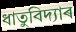
ধাতুবিদ্যাৰ